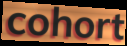
cohort